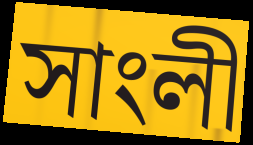
সাংলী